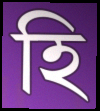
হি